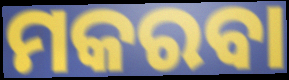
ମକରବା